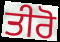
ਤੀਰੋ